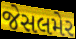
જેસલમેર